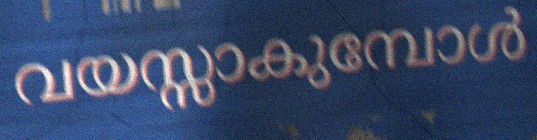
വയസ്സാകുമ്പോൾ